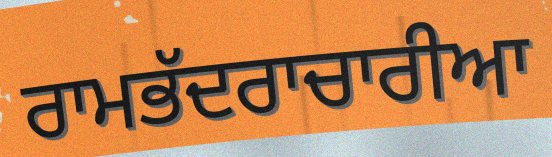
ਰਾਮਭੱਦਰਾਚਾਰੀਆ